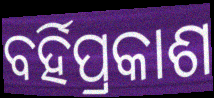
ବର୍ହିପ୍ରକାଶ